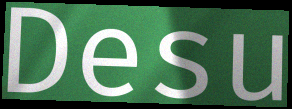
Desu